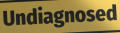
Undiagnosed